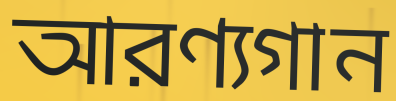
আরণ্যগান